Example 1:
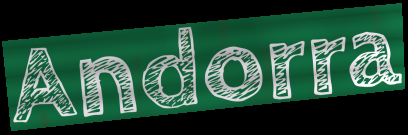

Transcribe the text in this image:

Andorra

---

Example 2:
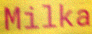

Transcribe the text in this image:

Milka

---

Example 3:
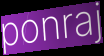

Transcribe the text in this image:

ponraj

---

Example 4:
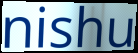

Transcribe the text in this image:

nishu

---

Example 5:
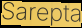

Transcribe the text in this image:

Sarepta